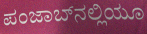
ಪಂಜಾಬ್‌ನಲ್ಲಿಯೂ